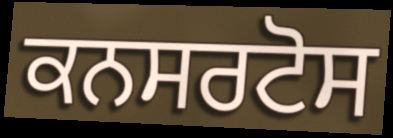
ਕਨਸਰਟੋਸ